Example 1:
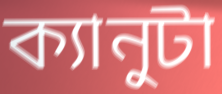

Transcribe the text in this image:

ক্যানুটা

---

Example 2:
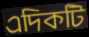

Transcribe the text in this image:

এদিকটি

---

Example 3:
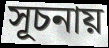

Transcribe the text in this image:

সূচনায়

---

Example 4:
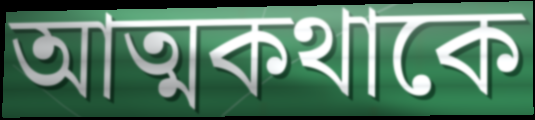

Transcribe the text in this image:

আত্মকথাকে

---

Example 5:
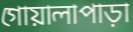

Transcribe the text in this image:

গোয়ালাপাড়া